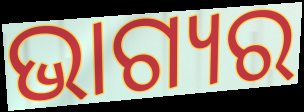
ଭାଗ୍ୟର